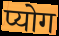
प्योग